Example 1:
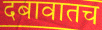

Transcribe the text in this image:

दबावातच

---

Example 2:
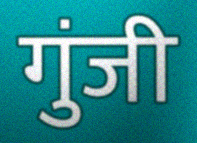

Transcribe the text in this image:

गुंजी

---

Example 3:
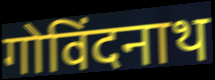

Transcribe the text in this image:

गोविंदनाथ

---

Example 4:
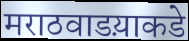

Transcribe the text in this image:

मराठवाडय़ाकडे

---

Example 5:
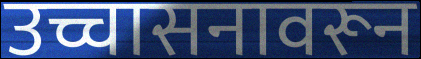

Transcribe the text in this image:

उच्चासनावरून